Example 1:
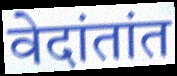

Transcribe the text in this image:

वेदांतांत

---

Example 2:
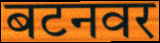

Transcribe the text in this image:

बटनवर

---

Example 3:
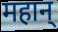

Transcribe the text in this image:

महान्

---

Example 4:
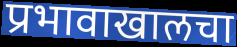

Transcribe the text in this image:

प्रभावाखालचा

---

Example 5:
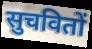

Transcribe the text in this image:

सुचवितों